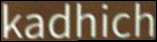
kadhich